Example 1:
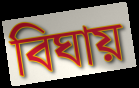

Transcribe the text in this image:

বিঘায়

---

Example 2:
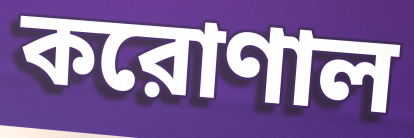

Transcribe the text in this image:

করোণাল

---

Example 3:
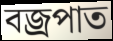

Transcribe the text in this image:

বজ্রপাত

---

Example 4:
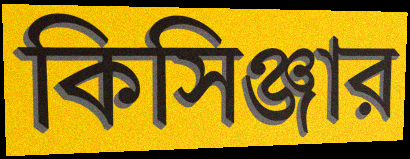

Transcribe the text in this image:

কিসিঞ্জার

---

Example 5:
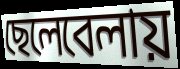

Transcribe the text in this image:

ছেলেবেলায়